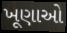
ખૂણાઓ